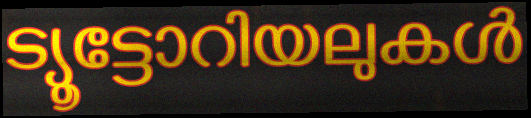
ട്യൂട്ടോറിയലുകൾ